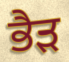
ਭੈੜ